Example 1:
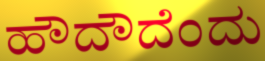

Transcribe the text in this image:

ಹೌದೌದೆಂದು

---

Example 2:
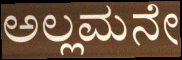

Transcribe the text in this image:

ಅಲ್ಲಮನೇ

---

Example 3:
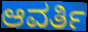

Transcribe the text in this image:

ಆವರ್ತಿ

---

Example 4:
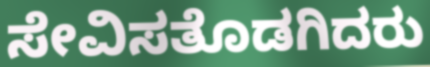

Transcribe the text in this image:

ಸೇವಿಸತೊಡಗಿದರು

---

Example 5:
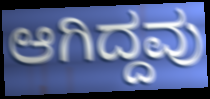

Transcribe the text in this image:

ಆಗಿದ್ದವು